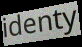
identy